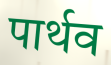
पार्थव